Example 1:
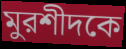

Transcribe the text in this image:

মুরশীদকে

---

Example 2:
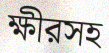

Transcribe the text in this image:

ক্ষীরসহ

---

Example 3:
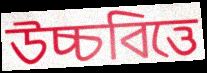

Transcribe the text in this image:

উচ্চবিত্তে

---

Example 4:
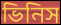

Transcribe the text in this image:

ভিনিস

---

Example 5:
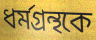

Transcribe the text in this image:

ধর্মগ্রন্থকে